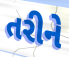
તરીને